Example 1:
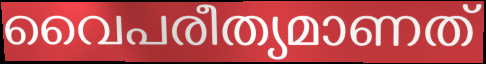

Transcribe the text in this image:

വൈപരീത്യമാണത്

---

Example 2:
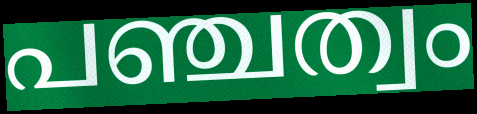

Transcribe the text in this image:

പഞ്ചത്വം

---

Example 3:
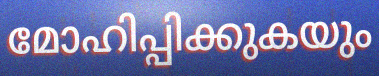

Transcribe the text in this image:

മോഹിപ്പിക്കുകയും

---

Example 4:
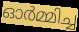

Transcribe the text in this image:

ഓർമ്മിച്ച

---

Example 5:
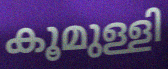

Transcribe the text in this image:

കൂമുള്ളി